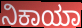
ನಿಕಾಯಾ